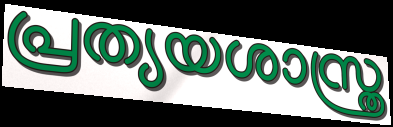
പ്രത്യയശാസ്ത്ര